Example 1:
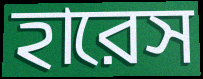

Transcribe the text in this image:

হারেস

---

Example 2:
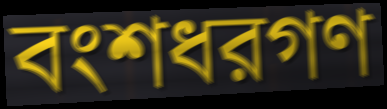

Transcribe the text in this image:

বংশধরগণ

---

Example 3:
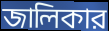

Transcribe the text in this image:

জালিকার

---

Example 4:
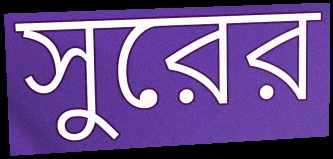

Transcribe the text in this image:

সুরের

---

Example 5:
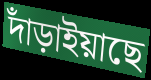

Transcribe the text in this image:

দাঁড়াইয়াছে